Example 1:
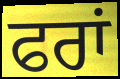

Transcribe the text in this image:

ਫਰਾਂ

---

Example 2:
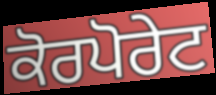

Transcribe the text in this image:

ਕੋਰਪੋਰੇਟ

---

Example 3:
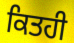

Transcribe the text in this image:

ਕਿਤਹੀ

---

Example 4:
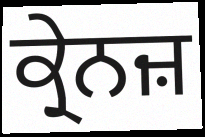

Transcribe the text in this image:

ਕ੍ਰੇਨਜ਼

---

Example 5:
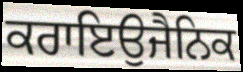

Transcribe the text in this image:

ਕਰਾਇਉਜੈਨਿਕ